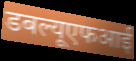
डबल्यूएफआई